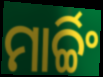
ମାର୍ଚ୍ଚିଂ